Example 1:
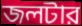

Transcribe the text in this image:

জলটার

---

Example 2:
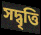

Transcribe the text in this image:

সদ্বৃত্তি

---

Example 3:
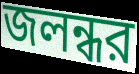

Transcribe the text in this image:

জলন্ধর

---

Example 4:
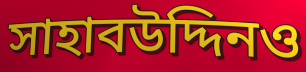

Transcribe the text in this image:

সাহাবউদ্দিনও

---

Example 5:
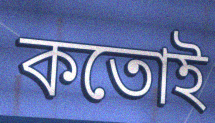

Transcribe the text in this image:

কতোই